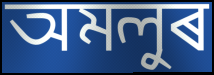
অমলুৰ